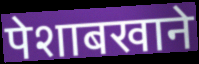
पेशाबखाने